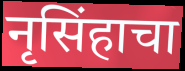
नृसिंहाचा